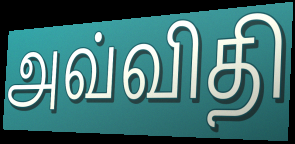
அவ்விதி